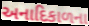
અનાદિકાળના